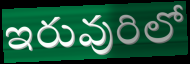
ఇరువురిలో